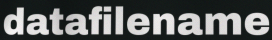
datafilename